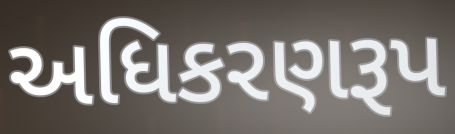
અધિકરણરૂપ